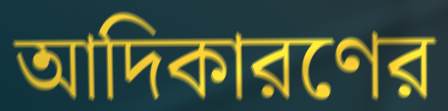
আদিকারণের